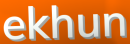
ekhun